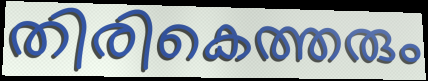
തിരികെത്തരും